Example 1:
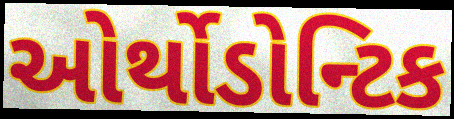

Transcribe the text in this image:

ઓર્થોડોન્ટિક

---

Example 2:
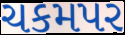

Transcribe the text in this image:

ચકમપર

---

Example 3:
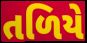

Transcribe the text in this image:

તળિયે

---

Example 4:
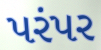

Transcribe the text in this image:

પરંપર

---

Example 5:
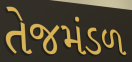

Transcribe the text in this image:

તેજમંડળ